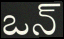
ఒన్